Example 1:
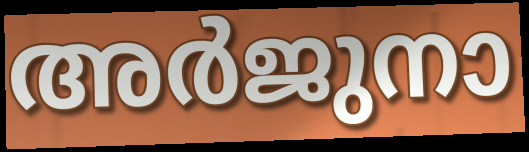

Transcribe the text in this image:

അർജുനാ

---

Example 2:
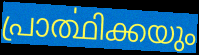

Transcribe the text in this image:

പ്രാൎത്ഥിക്കയും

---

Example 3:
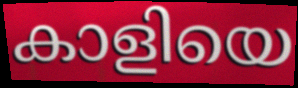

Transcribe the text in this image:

കാളിയെ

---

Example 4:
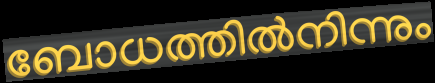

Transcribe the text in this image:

ബോധത്തിൽനിന്നും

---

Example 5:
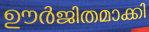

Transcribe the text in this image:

ഊർജിതമാക്കി